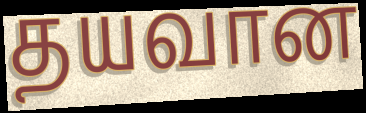
தயவான